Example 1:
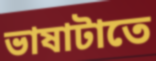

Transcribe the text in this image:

ভাষাটাতে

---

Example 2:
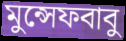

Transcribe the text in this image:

মুন্সেফবাবু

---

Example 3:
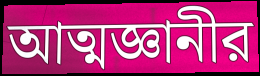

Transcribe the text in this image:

আত্মজ্ঞানীর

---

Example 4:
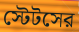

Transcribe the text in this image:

স্টেটসের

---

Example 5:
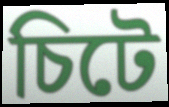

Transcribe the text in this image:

চিটে